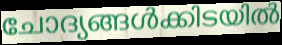
ചോദ്യങ്ങൾക്കിടയിൽ